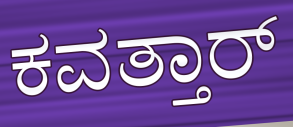
ಕವತ್ತಾರ್